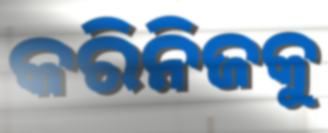
କରିନିଜକୁ